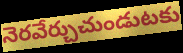
నెరవేర్చుచుండుటకు